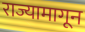
राज्यामागून